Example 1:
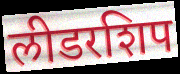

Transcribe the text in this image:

लीडरशिप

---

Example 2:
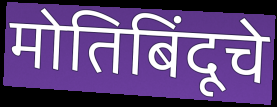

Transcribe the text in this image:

मोतिबिंदूचे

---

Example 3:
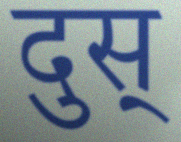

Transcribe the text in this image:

दुस्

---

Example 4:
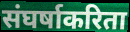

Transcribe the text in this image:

संघर्षाकरिता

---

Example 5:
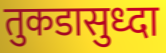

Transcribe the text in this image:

तुकडासुध्दा